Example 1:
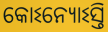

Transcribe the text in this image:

କୋଽନ୍ୟୋଽସ୍ତି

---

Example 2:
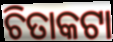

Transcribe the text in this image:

ଚିତାକଟା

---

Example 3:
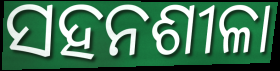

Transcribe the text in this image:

ସହନଶୀଳା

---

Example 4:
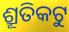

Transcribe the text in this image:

ଶ୍ରୂତିକଟୁ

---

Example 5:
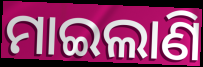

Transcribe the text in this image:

ମାଇଲାଣି